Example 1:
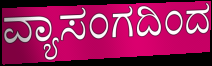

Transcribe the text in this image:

ವ್ಯಾಸಂಗದಿಂದ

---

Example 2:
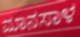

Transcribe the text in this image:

ಮಾನಸಾಳ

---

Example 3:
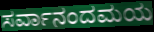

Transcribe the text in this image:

ಸರ್ವಾನಂದಮಯ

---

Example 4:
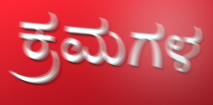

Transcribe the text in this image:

ಕ್ರಮಗಳ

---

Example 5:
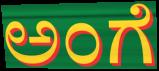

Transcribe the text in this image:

ಅಂಗೆ